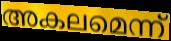
അകലമെന്ന്